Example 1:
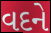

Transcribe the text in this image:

વદને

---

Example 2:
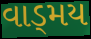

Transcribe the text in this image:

વાડ્મય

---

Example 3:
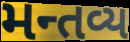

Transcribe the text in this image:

મન્તવ્ય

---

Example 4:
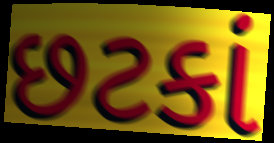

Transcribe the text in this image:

છટકાં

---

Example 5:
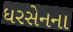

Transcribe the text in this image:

ધરસેનના